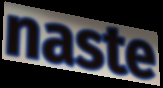
naste